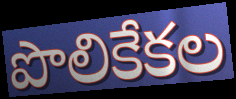
పొలికేకల